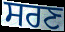
ਸਰਣ